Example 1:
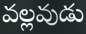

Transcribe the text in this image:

వల్లవుడు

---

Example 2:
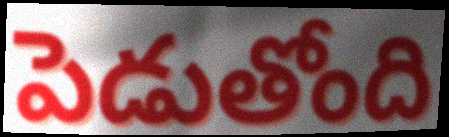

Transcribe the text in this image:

పెడుతోంది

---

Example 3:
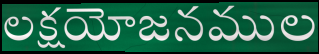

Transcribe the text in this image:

లక్షయోజనముల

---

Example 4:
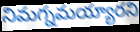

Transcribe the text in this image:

నిమగ్నమయ్యారని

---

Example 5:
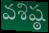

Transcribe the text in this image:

వశిష్ఠ